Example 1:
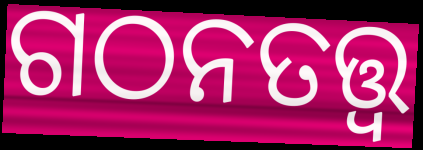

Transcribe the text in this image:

ଗଠନତତ୍ତ୍ୱ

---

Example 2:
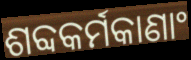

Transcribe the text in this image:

ଶବ୍ଦକର୍ମକାଣାଂ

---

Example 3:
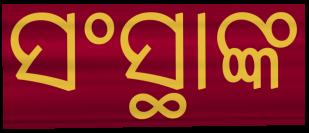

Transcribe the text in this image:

ସଂସ୍ଥାଙ୍କ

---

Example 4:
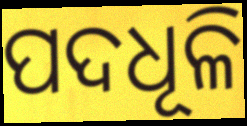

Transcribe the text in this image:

ପଦଧୂଳି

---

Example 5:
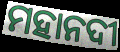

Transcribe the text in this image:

ମହାନଦୀ